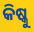
କିଷ୍କୁ